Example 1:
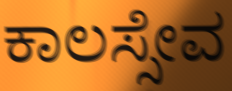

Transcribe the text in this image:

ಕಾಲಸ್ಸೇವ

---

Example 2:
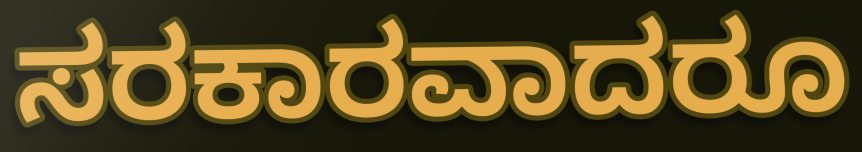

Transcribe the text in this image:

ಸರಕಾರವಾದರೂ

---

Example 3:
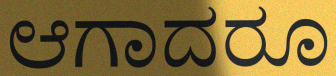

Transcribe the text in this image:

ಆಗಾದರೂ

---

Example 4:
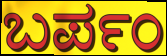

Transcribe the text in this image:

ಬರ್ಪಂ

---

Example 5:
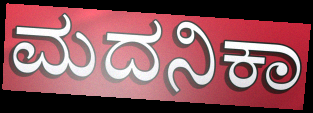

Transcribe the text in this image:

ಮದನಿಕಾ